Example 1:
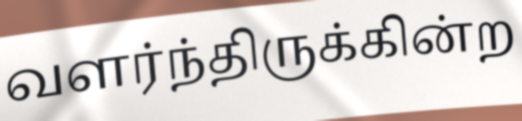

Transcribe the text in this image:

வளர்ந்திருக்கின்ற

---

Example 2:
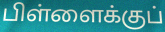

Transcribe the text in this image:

பிள்ளைக்குப்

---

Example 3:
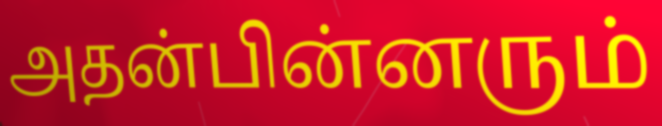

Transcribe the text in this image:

அதன்பின்னரும்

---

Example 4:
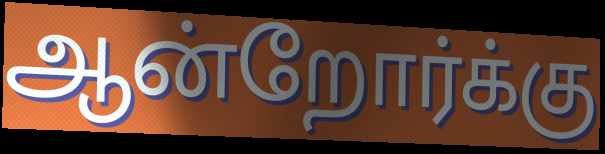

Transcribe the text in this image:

ஆன்றோர்க்கு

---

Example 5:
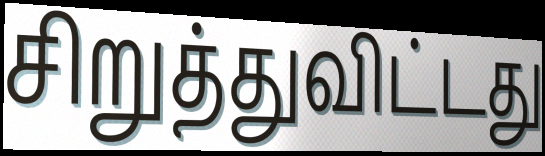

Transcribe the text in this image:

சிறுத்துவிட்டது